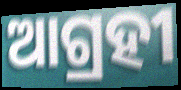
ଆଗ୍ରହୀ